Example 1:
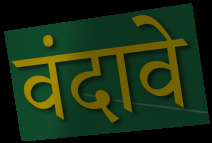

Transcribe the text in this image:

वंदावे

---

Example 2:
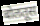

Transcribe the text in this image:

बोलतूस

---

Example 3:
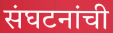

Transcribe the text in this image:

संघटनांची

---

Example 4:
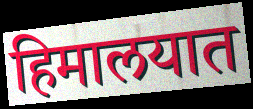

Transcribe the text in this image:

हिमालयात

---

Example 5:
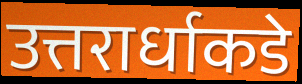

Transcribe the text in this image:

उत्तरार्धाकडे